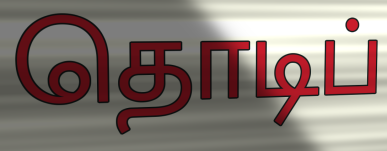
தொடிப்